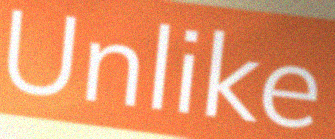
Unlike